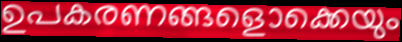
ഉപകരണങ്ങളൊക്കെയും